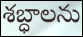
శబ్ధాలను